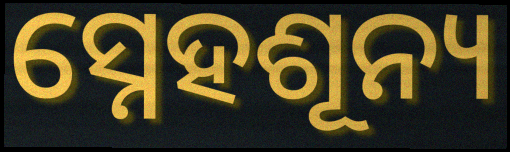
ସ୍ନେହଶୂନ୍ୟ